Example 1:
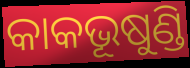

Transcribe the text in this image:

କାକଭୂଷୁଣ୍ଡି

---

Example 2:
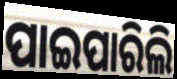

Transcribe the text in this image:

ପାଇପାରିଲି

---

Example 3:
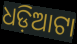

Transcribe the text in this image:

ଧଡ଼ିଆଟା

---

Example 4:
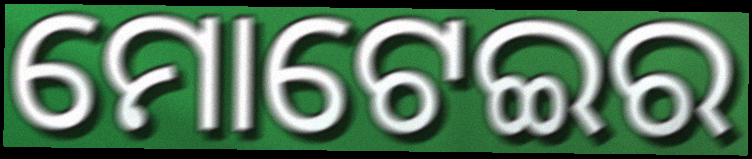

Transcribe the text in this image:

ମୋଟେଇର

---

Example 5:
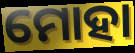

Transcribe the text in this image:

ମୋହା